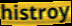
histroy